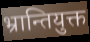
भ्रान्तियुक्त